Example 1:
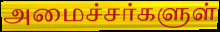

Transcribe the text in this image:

அமைச்சர்களுள்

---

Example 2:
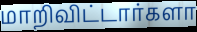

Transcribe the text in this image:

மாறிவிட்டார்களா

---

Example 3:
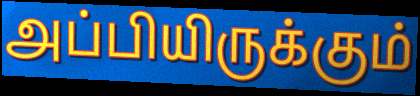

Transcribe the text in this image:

அப்பியிருக்கும்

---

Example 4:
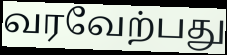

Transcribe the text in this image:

வரவேற்பது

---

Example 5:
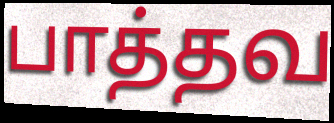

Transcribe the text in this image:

பாத்தவ